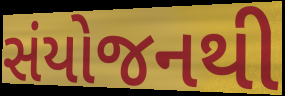
સંયોજનથી